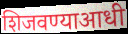
शिजवण्याआधी